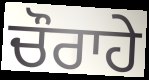
ਚੌਰਾਹੇ